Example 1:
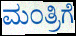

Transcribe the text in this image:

ಮಂತ್ರಿಗೆ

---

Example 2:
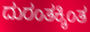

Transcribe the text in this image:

ದುರಂತಕ್ಕಿಂತ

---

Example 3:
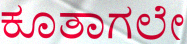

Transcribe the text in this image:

ಕೂತಾಗಲೇ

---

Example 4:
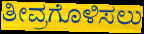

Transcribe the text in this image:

ತೀವ್ರಗೊಳಿಸಲು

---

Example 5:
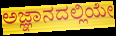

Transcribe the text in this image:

ಅಜ್ಞಾನದಲ್ಲಿಯೇ